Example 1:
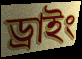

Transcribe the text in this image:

ড্রাইং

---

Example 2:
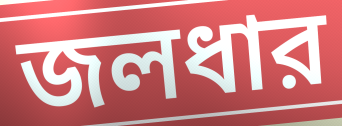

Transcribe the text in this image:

জলধার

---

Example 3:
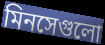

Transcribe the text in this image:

মিনসেগুলো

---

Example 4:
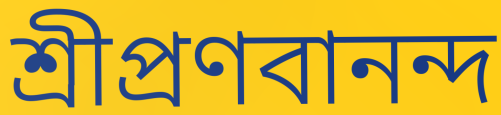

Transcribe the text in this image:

শ্রীপ্রণবানন্দ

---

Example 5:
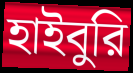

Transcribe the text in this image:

হাইবুরি